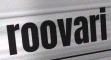
roovari